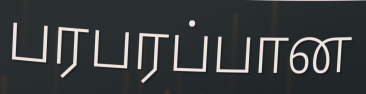
பரபரப்பான